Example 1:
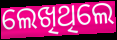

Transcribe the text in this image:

ଲେଖିଥିଲେ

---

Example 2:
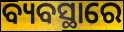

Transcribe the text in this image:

ବ୍ୟବସ୍ଥାରେ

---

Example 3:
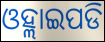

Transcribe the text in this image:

ଓହ୍ଲାଇପଡି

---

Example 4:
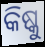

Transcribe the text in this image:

କିଷ୍କୁ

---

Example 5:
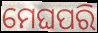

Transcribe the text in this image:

ମେଘପରି